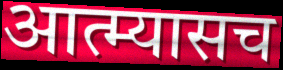
आत्म्यासच